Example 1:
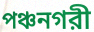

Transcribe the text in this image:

পঞ্চনগরী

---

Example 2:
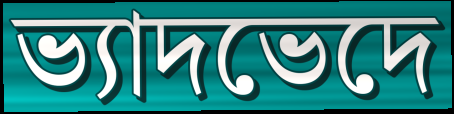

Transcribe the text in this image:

ভ্যাদভেদে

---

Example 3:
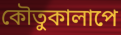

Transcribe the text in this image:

কৌতুকালাপে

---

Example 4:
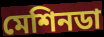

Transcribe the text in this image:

মেশিনডা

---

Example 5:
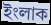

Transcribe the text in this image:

ইংলাক